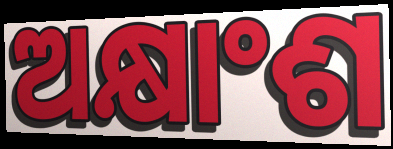
ଅକ୍ଷାଂଶ